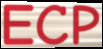
ECP